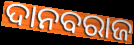
ଦାନବରାଜ